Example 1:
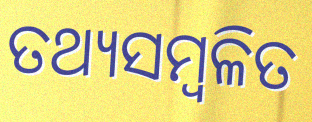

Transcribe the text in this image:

ତଥ୍ୟସମ୍ବଳିତ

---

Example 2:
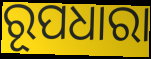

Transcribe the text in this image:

ରୂପଧାରା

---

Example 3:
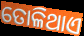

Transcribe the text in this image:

ତୋଳିଥାଏ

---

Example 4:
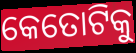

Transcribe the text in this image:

କେତୋଟିକୁ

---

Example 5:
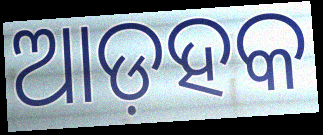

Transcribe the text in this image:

ଆଡ଼ହକ